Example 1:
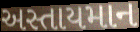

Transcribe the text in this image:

અસ્તાયમાન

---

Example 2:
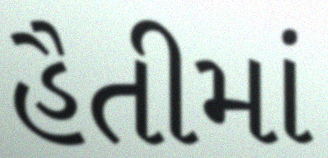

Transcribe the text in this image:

હૈતીમાં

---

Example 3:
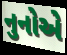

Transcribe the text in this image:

નુનોએ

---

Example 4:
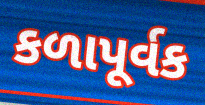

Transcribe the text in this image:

કળાપૂર્વક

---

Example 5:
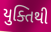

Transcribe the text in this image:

યુક્તિથી